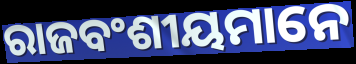
ରାଜବଂଶୀୟମାନେ